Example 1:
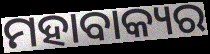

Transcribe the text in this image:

ମହାବାକ୍ୟର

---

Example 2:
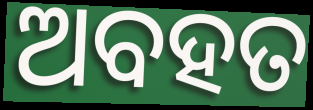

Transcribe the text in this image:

ଅବହତ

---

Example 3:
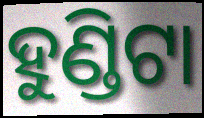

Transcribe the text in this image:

ହୁଣ୍ଡିଟା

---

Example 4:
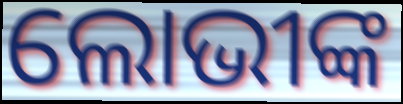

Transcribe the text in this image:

ଲୋଭୀଙ୍କ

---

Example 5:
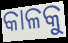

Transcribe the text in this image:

କାଳକୁ